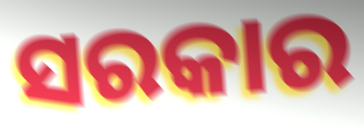
ସରକାର